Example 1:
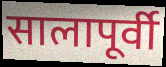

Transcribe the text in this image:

सालापूर्वी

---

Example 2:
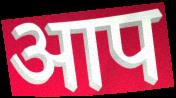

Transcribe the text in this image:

आप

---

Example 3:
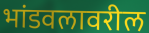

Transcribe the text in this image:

भांडवलावरील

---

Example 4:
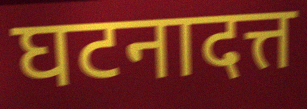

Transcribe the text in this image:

घटनादत्त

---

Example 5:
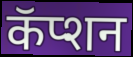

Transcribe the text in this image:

कॅप्शन